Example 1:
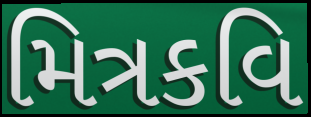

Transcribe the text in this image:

મિત્રકવિ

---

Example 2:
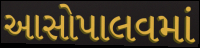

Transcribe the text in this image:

આસોપાલવમાં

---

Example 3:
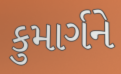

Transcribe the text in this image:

કુમાર્ગને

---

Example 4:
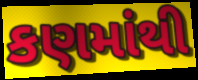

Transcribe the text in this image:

કણમાંથી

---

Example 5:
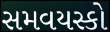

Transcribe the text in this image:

સમવયસ્કો